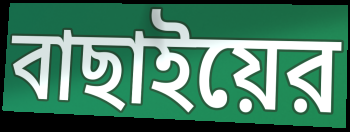
বাছাইয়ের